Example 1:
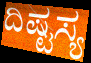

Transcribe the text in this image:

ದಿಷ್ಟಸ್ಯ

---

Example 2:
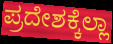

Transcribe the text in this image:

ಪ್ರದೇಶಕ್ಕೆಲ್ಲಾ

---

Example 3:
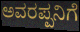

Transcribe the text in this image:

ಅವರಪ್ಪನಿಗೆ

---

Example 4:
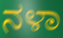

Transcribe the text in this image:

ನಳಾ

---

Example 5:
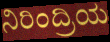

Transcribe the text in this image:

ನಿರಿಂದ್ರಿಯ